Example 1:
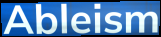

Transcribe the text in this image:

Ableism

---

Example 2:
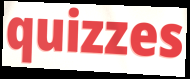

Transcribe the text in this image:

quizzes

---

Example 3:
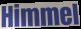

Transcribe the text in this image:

Himmel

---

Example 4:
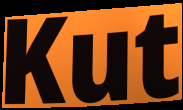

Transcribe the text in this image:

Kut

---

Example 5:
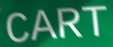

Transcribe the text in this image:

CART